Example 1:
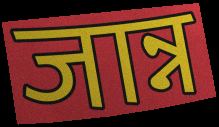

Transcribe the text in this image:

जान्न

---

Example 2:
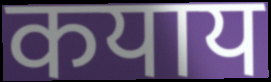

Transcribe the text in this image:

कयाय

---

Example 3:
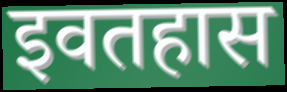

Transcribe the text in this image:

इवतहास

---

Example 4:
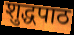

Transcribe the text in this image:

शुद्धपाठ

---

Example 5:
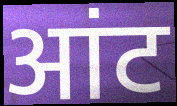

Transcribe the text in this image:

आंट